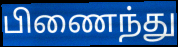
பிணைந்து